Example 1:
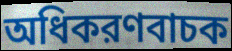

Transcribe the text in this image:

অধিকরণবাচক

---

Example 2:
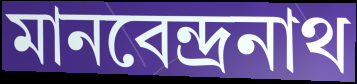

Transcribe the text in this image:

মানবেন্দ্রনাথ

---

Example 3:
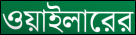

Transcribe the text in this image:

ওয়াইলারের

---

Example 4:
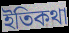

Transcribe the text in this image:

ইতিকথা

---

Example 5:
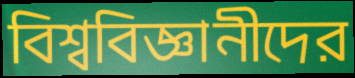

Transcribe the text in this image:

বিশ্ববিজ্ঞানীদের